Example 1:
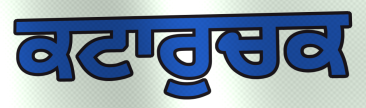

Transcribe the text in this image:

ਕਟਾਰੁਚਕ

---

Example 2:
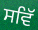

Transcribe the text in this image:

ਸਵਿੱ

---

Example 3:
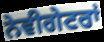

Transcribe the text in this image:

ਨੇਵੀਗੇਟਰਾਂ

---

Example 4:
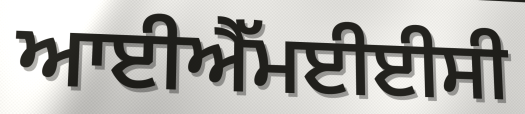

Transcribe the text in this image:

ਆਈਐੱਮਈਈਸੀ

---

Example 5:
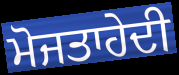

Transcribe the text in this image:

ਮੋਜਤਾਹੇਦੀ